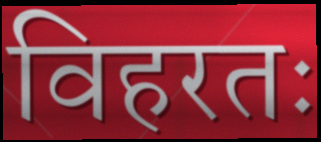
विहरतः